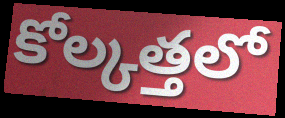
కోల్కత్తలో